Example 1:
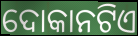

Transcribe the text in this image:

ଦୋକାନଟିଏ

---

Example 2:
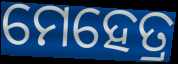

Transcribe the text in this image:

ମେହେତ୍ର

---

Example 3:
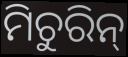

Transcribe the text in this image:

ମିଚୁରିନ୍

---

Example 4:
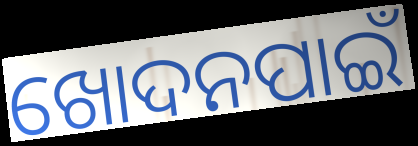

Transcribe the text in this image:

ଖୋଦନପାଇଁ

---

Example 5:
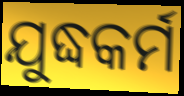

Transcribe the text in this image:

ଯୁଦ୍ଧକର୍ମ